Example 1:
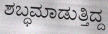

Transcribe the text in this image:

ಶಬ್ಧಮಾಡುತ್ತಿದ್ದ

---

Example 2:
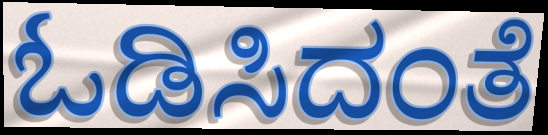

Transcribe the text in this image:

ಓಡಿಸಿದಂತೆ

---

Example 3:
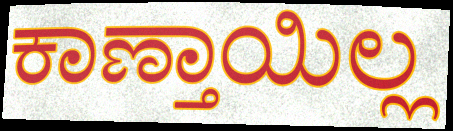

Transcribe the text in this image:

ಕಾಣ್ತಾಯಿಲ್ಲ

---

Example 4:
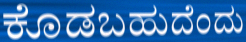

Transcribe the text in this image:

ಕೊಡಬಹುದೆಂದು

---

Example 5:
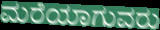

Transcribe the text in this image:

ಮರೆಯಾಗುವರು